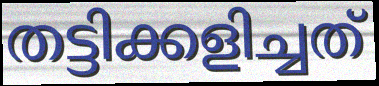
തട്ടിക്കളിച്ചത്